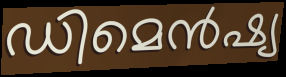
ഡിമെൻഷ്യ